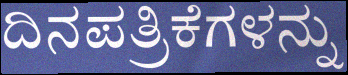
ದಿನಪತ್ರಿಕೆಗಳನ್ನು